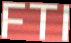
FTI